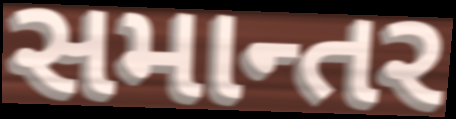
સમાન્તર